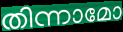
തിന്നാമോ